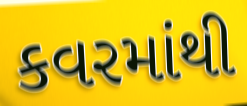
કવરમાંથી